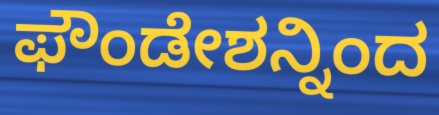
ಫೌಂಡೇಶನ್ನಿಂದ